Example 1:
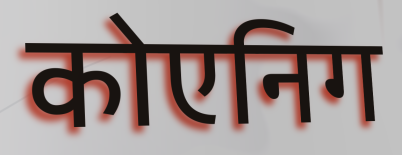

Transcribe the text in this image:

कोएनिग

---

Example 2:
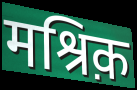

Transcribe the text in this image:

मश्रिक़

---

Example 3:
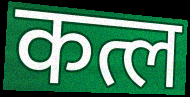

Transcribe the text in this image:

कत्‍ल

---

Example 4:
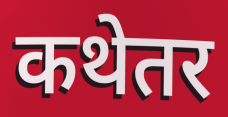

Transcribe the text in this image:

कथेतर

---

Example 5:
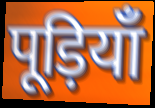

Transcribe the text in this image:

पूड़ियाँ